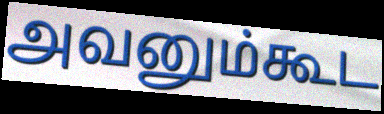
அவனும்கூட